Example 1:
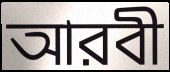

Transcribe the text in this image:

আরবী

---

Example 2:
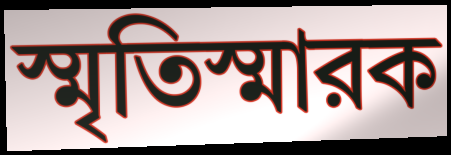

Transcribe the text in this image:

স্মৃতিস্মারক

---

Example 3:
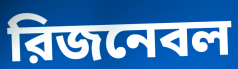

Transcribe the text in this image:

রিজনেবল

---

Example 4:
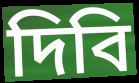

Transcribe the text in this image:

দিবি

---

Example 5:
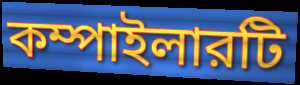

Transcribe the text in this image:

কম্পাইলারটি